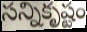
సన్నికృష్టం